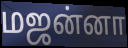
மஜன்னா